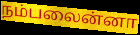
நம்பலைன்னா